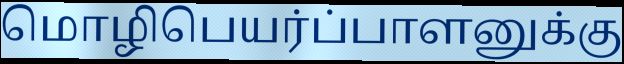
மொழிபெயர்ப்பாளனுக்கு